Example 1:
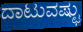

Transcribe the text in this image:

ದಾಟುವಷ್ಟು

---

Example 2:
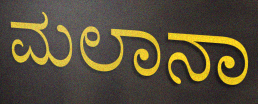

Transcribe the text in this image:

ಮಲಾನಾ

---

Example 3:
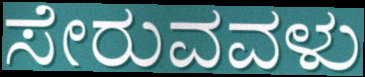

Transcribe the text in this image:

ಸೇರುವವಳು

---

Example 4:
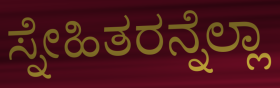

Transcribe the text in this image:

ಸ್ನೇಹಿತರನ್ನೆಲ್ಲಾ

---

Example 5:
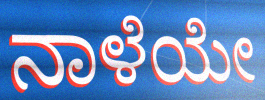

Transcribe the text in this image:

ನಾಳೆಯೇ